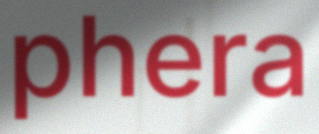
phera